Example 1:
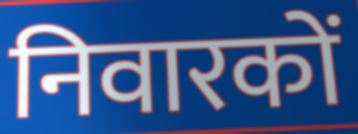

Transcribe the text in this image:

निवारकों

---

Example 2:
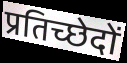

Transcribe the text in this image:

प्रतिच्छेदों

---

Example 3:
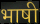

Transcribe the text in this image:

भाषी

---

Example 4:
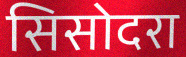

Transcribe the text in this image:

सिसोदरा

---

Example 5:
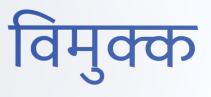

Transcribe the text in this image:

विमुक्क